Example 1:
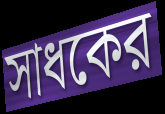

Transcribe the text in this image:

সাধকের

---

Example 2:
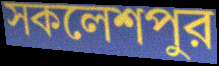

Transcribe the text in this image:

সকলেশপুর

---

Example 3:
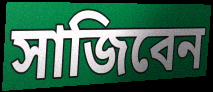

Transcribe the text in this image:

সাজিবেন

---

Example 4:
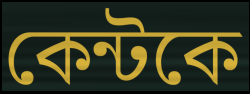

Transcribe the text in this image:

কেন্টকে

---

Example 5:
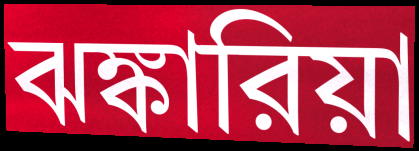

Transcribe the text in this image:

ঝঙ্কারিয়া